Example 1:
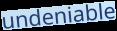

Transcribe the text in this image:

undeniable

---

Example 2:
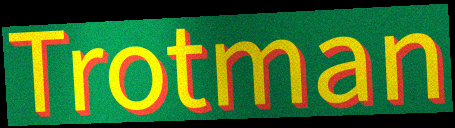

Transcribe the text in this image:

Trotman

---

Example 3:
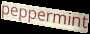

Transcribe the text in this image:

peppermint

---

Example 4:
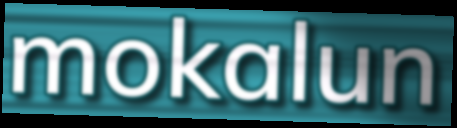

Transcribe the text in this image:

mokalun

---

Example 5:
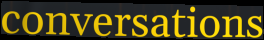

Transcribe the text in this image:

conversations